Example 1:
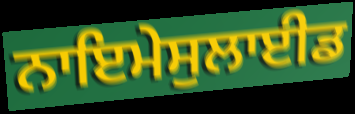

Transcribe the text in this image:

ਨਾਇਮੇਸੁਲਾਈਡ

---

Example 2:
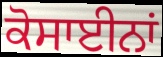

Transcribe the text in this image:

ਕੋਸਾਈਨਾਂ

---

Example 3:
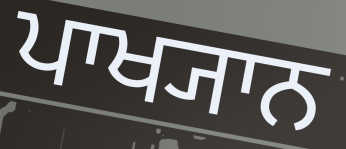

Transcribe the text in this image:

ਪਾਖ੍ਯਾਨ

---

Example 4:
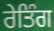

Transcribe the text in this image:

ਰੇਤਿੰਗ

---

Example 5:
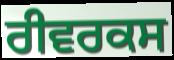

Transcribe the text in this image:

ਰੀਵਰਕਸ